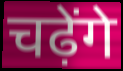
चढ़ेंगे